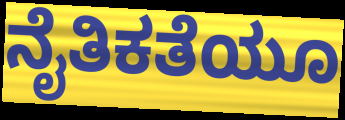
ನೈತಿಕತೆಯೂ